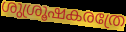
ശുശ്രൂഷകരത്രേ